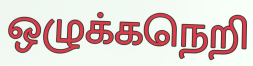
ஒழுக்கநெறி